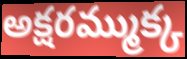
అక్షరమ్ముక్క